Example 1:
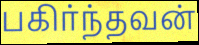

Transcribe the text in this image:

பகிர்ந்தவன்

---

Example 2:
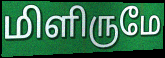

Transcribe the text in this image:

மிளிருமே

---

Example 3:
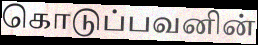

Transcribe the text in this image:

கொடுப்பவனின்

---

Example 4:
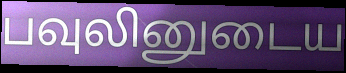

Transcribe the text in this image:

பவுலினுடைய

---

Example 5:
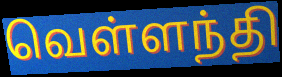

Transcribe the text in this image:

வெள்ளந்தி